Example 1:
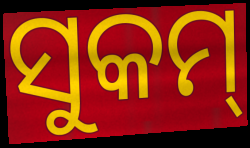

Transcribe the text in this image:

ସୁକମ୍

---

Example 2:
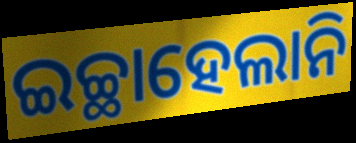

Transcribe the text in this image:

ଇଚ୍ଛାହେଲାନି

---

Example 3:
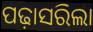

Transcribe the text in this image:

ପଢ଼ାସରିଲା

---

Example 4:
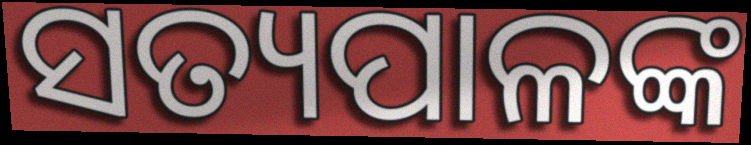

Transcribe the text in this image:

ସତ୍ୟପାଳଙ୍କ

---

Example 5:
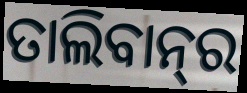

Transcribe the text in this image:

ତାଲିବାନ୍‌ର